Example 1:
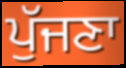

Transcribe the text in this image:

ਪੁੱਜਣਾ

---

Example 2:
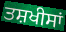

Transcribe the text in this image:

ਤਸ਼ਖੀਸਾਂ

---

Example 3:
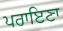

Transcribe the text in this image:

ਪਰਾਇਣਾ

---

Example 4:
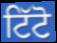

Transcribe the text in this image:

ਟਿੱਟੋ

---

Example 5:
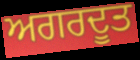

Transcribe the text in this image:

ਅਗਰਦੂਤ